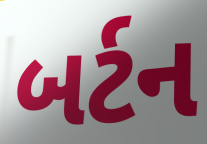
બર્ટન